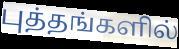
புத்தங்களில்